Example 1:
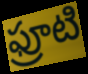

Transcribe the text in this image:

ఫ్రూటి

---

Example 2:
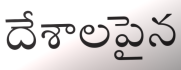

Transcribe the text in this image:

దేశాలపైన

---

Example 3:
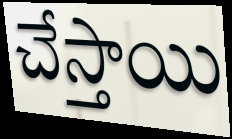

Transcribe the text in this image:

చేస్తాయి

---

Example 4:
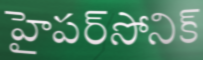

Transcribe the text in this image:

హైపర్‌సోనిక్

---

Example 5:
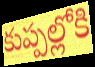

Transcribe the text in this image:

కుప్పల్లోకి